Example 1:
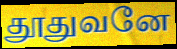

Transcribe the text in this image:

தூதுவனே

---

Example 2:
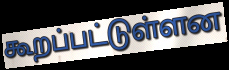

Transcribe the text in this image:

கூறப்பட்டுள்ளன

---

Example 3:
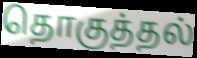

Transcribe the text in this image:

தொகுத்தல்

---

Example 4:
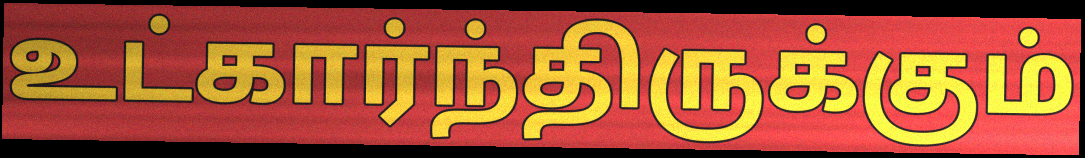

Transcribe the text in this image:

உட்கார்ந்திருக்கும்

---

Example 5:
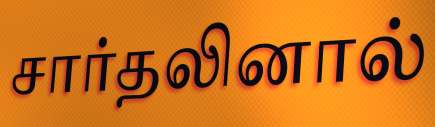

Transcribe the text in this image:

சார்தலினால்